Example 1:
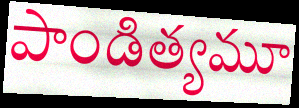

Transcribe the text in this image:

పాండిత్యమూ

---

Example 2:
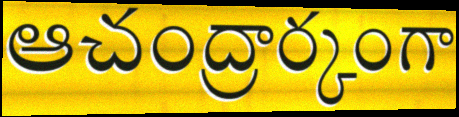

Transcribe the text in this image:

ఆచంద్రార్కంగా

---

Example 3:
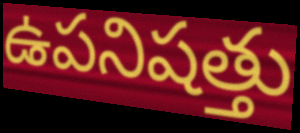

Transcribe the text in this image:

ఉపనిషత్తు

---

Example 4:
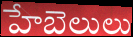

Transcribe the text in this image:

హేబెలులు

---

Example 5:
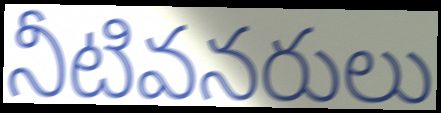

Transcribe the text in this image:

నీటివనరులు